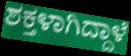
ಶಕ್ತಳಾಗಿದ್ದಾಳೆ